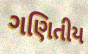
ગણિતીય